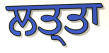
ਲਤ੍ਤਾ